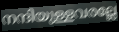
നന്ദിയുള്ളവരല്ലേ